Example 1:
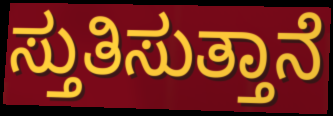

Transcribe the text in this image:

ಸ್ತುತಿಸುತ್ತಾನೆ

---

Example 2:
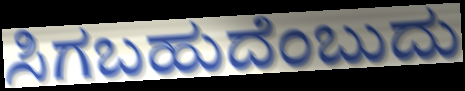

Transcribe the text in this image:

ಸಿಗಬಹುದೆಂಬುದು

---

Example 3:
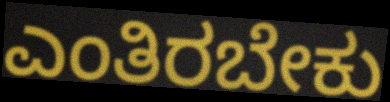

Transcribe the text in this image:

ಎಂತಿರಬೇಕು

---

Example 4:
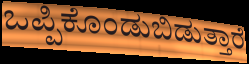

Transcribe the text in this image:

ಒಪ್ಪಿಕೊಂಡುಬಿಡುತ್ತಾರೆ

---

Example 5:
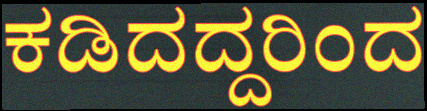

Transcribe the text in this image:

ಕಡಿದದ್ದರಿಂದ